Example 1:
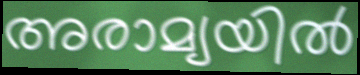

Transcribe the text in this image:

അരാമ്യയിൽ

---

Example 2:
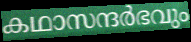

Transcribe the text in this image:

കഥാസന്ദർഭവും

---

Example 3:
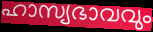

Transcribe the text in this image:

ഹാസ്യഭാവവും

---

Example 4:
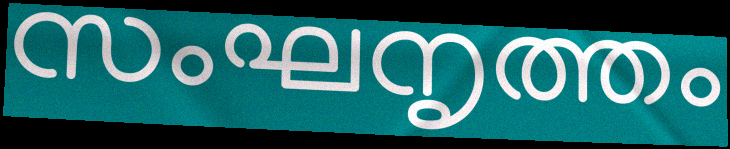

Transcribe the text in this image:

സംഘനൃത്തം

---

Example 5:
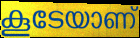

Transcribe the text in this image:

കൂടേയാണ്